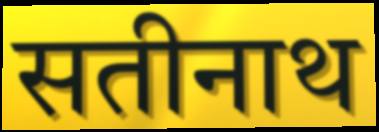
सतीनाथ